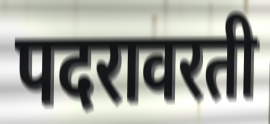
पदरावरती